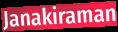
Janakiraman